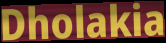
Dholakia